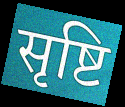
सृष्टि